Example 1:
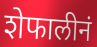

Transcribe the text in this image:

शेफालीनं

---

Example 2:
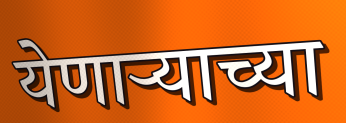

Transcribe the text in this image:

येणाऱ्याच्या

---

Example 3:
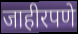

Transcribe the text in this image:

जाहीरपणे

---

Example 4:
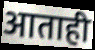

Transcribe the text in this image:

आताही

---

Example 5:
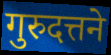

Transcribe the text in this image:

गुरुदत्तने